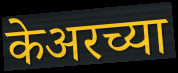
केअरच्या